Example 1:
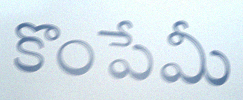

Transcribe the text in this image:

కొంపేమీ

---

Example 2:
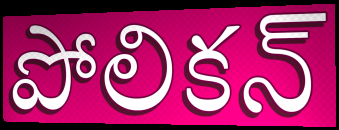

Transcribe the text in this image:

పోలికన్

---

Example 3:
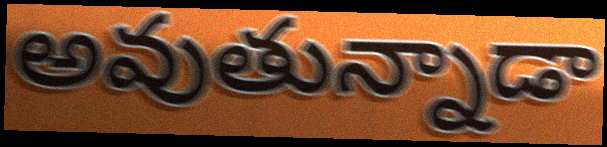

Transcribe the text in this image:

అవుతున్నాడా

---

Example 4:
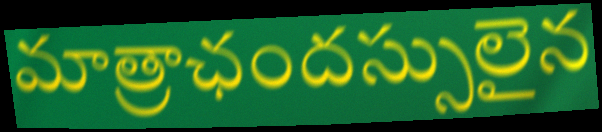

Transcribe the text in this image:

మాత్రాఛందస్సులైన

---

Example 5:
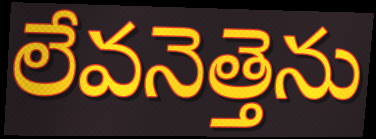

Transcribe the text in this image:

లేవనెత్తెను